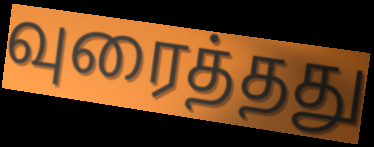
வுரைத்தது